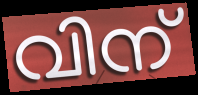
വിന്